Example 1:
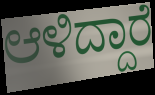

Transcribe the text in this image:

ಆಳಿದ್ದಾರೆ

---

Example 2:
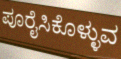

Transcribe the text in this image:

ಪೂರೈಸಿಕೊಳ್ಳುವ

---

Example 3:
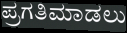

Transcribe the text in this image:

ಪ್ರಗತಿಮಾಡಲು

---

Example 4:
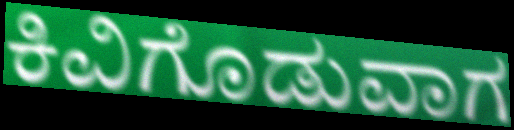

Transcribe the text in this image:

ಕಿವಿಗೊಡುವಾಗ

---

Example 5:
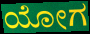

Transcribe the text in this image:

ಯೋಗ